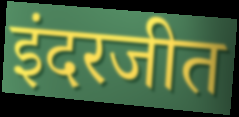
इंदरजीत